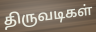
திருவடிகள்